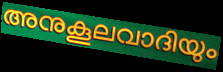
അനുകൂലവാദിയും